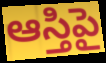
ఆస్తిపై